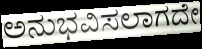
ಅನುಭವಿಸಲಾಗದೇ